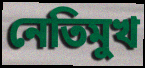
নেতিমুখ